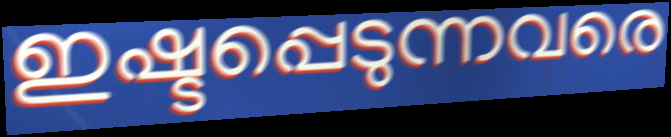
ഇഷ്ടപ്പെടുന്നവരെ